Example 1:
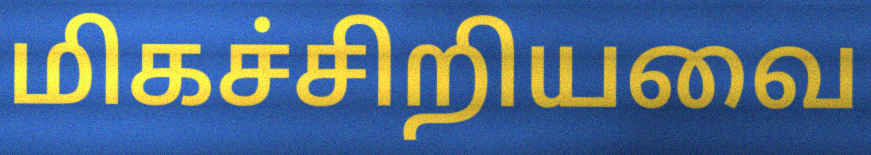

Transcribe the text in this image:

மிகச்சிறியவை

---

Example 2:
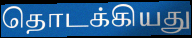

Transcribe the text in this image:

தொடக்கியது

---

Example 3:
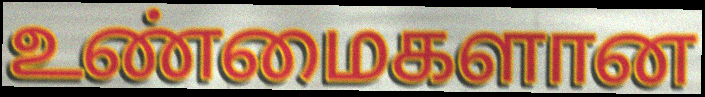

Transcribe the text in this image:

உண்மைகளான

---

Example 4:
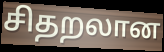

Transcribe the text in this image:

சிதறலான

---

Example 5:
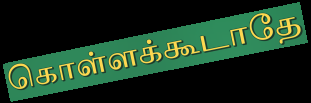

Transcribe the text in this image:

கொள்ளக்கூடாதே